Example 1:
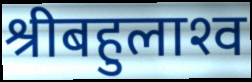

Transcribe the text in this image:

श्रीबहुलाश्व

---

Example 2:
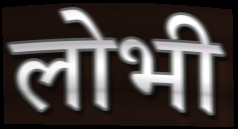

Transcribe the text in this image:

लोभी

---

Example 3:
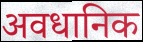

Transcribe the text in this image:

अवधानिक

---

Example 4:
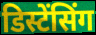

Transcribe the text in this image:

डिस्टेंसिंग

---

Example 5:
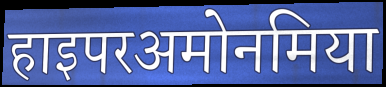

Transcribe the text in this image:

हाइपरअमोनमिया